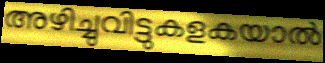
അഴിച്ചുവിട്ടുകളകയാൽ